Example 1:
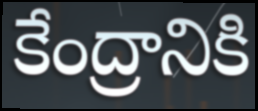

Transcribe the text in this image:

కేంద్రానికి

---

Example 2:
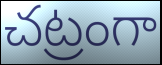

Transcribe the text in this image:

చట్రంగా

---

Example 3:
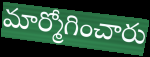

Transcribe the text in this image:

మార్మోగించారు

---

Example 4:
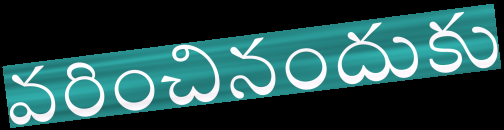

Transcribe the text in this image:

వరించినందుకు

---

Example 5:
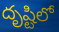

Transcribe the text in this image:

దృష్టిలో